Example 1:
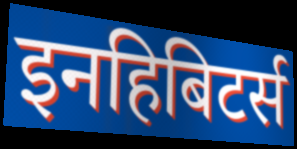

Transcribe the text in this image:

इनहिबिटर्स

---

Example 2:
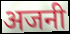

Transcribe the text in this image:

अजनी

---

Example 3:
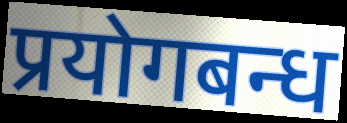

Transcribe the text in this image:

प्रयोगबन्ध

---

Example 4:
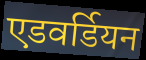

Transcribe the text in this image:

एडवर्डियन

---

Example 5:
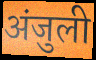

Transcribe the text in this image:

अंजुली